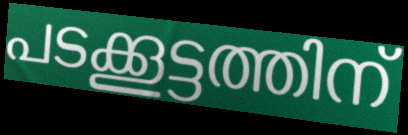
പടക്കൂട്ടത്തിന്